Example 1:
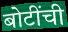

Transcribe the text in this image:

बोटींची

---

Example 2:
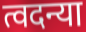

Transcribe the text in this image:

त्वदन्या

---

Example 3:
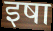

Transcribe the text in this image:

इषा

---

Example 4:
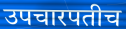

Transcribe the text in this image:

उपचारपतीच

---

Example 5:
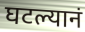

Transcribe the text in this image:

घटल्यानं